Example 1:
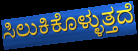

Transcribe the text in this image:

ಸಿಲುಕಿಕೊಳ್ಳುತ್ತದೆ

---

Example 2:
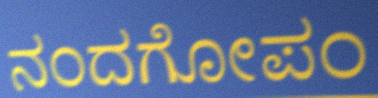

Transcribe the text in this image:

ನಂದಗೋಪಂ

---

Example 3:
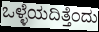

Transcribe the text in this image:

ಒಳ್ಳೆಯದಿತ್ತೆಂದು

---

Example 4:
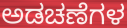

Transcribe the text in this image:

ಅಡಚಣೆಗಳ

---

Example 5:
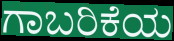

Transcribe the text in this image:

ಗಾಬರಿಕೆಯ